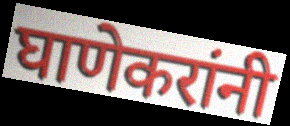
घाणेकरांनी